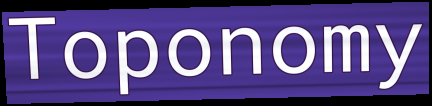
Toponomy